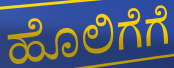
ಹೊಲಿಗೆಗೆ